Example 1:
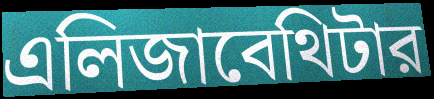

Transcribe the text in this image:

এলিজাবেথিটার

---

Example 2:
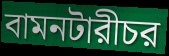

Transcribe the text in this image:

বামনটারীচর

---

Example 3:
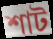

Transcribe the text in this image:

শাট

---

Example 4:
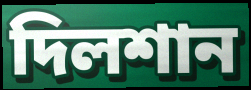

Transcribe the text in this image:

দিলশান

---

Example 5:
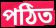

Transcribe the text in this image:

পঠিত